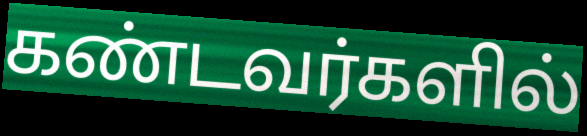
கண்டவர்களில்